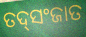
ତଦ୍‌ସଂଜାତ